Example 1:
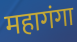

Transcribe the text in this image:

महागंगा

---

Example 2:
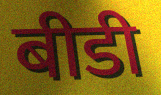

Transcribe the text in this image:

बीडी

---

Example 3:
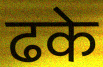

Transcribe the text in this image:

ढके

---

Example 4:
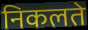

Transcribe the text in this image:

निकलते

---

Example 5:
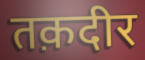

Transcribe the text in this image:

तक़दीर